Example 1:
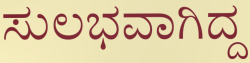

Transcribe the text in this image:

ಸುಲಭವಾಗಿದ್ದ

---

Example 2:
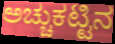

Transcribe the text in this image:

ಅಚ್ಚುಕಟ್ಟಿನ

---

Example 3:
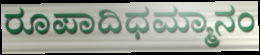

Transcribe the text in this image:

ರೂಪಾದಿಧಮ್ಮಾನಂ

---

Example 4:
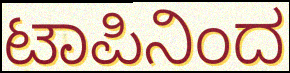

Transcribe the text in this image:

ಟಾಪಿನಿಂದ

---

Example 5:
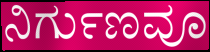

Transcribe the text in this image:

ನಿರ್ಗುಣವೂ